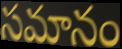
సమానం